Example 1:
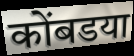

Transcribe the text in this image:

कोंबडया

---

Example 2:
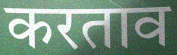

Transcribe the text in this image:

करताव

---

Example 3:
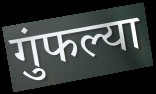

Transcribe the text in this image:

गुंफल्या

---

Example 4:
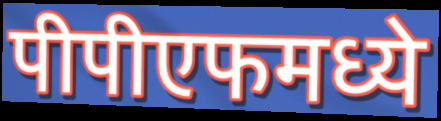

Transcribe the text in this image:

पीपीएफमध्ये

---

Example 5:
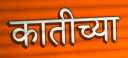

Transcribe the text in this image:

कातीच्या